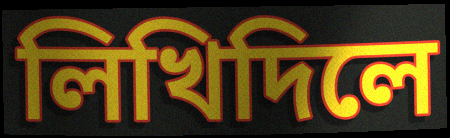
লিখিদিলে